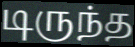
டிருந்த